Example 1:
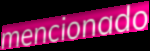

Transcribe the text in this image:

mencionado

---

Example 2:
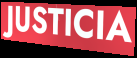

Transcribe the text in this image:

JUSTICIA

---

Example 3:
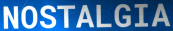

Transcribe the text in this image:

NOSTALGIA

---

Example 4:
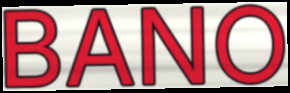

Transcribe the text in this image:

BANO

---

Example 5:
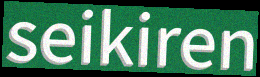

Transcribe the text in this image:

seikiren